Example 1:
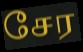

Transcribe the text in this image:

சேர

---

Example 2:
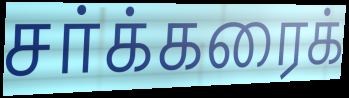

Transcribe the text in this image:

சர்க்கரைக்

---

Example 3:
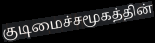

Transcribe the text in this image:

குடிமைச்சமூகத்தின்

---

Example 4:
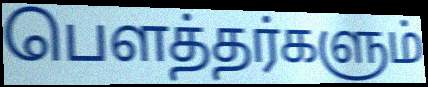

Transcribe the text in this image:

பௌத்தர்களும்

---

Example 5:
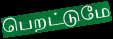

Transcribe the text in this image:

பெறட்டுமே